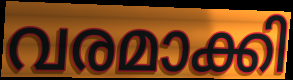
വരമാക്കി